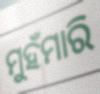
ମୁହଁମାରି